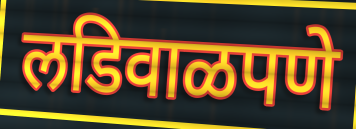
लडिवाळपणे